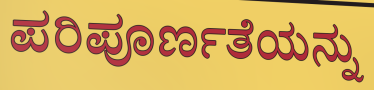
ಪರಿಪೂರ್ಣತೆಯನ್ನು